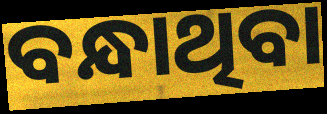
ବନ୍ଧାଥିବା